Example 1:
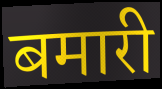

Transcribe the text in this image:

बमारी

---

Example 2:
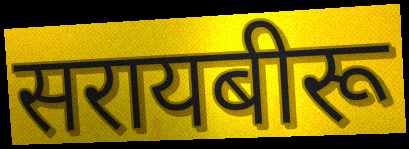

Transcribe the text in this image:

सरायबीरू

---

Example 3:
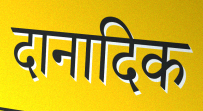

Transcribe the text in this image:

दानादिक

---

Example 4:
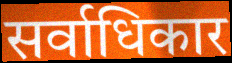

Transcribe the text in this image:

सर्वाधिकार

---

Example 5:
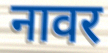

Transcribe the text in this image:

नावर